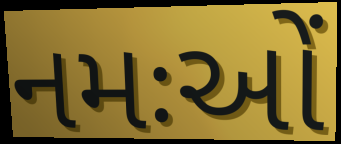
નમઃઓં